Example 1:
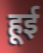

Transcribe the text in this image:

हूई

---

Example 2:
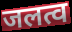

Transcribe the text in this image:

जलत्व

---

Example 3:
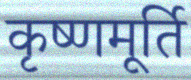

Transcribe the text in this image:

कृष्णमूर्ति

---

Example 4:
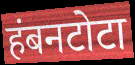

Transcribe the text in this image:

हंबनटोटा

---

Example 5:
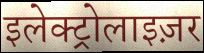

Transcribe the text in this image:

इलेक्ट्रोलाइज़र